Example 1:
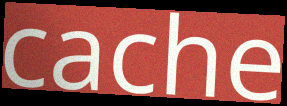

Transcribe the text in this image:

cache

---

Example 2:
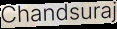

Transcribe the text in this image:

Chandsuraj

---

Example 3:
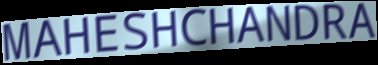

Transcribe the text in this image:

MAHESHCHANDRA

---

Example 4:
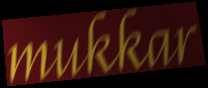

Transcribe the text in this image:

mukkar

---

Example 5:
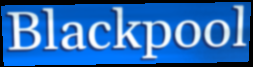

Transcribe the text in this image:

Blackpool